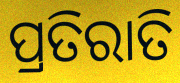
ପ୍ରତିରାତି